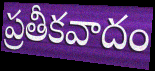
ప్రతీకవాదం